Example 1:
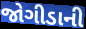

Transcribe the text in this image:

જોગીડાની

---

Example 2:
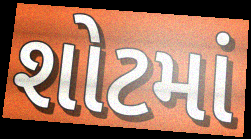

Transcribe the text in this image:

શોટમાં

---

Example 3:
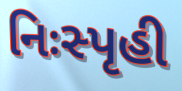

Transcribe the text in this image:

નિઃસ્પૃહી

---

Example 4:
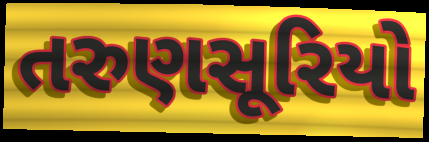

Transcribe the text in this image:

તરુણસૂરિયો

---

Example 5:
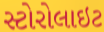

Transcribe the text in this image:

સ્ટોરોલાઇટ